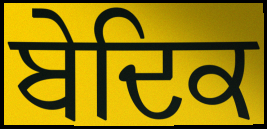
ਬੇਦਿਕ